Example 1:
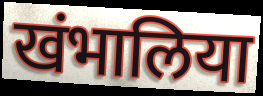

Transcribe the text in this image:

खंभालिया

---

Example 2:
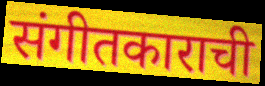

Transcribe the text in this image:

संगीतकाराची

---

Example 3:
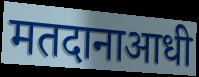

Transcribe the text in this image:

मतदानाआधी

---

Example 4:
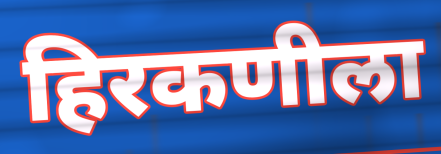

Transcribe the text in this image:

हिरकणीला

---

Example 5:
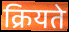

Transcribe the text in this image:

क्रियते